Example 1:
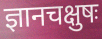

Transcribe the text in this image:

ज्ञानचक्षुषः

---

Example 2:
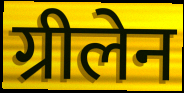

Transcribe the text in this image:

ग्रीलेन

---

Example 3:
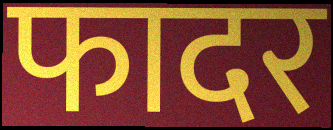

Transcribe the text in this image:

फादर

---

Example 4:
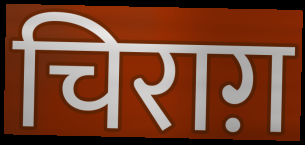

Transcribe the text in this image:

चिराग़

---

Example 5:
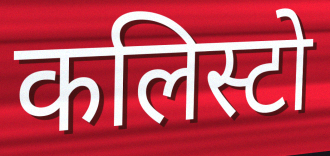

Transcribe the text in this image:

कलिस्टो